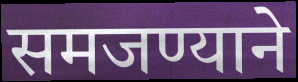
समजण्याने